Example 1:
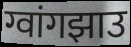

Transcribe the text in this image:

ग्वांगझाउ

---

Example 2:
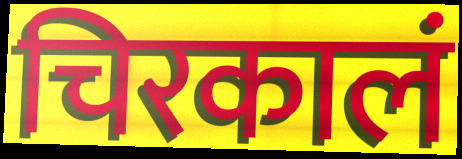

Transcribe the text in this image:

चिरकालं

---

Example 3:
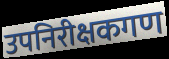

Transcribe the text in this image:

उपनिरीक्षकगण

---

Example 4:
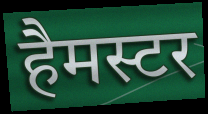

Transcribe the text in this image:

हैमस्टर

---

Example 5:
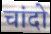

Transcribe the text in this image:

चांदो